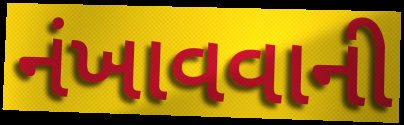
નંખાવવાની